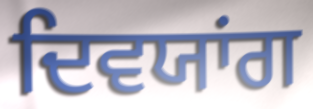
ਦਿਵਯਾਂਗ